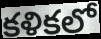
కళికలో